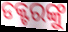
ଡକ୍ଟରଙ୍କୁ